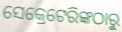
ସେକ୍ରେଟେରିଙ୍କଠାରୁ